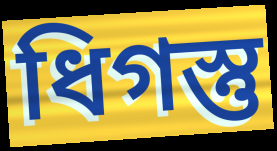
ধিগস্তু